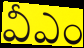
వీఎం